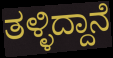
ತಳ್ಳಿದ್ದಾನೆ